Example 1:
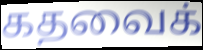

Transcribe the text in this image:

கதவைக்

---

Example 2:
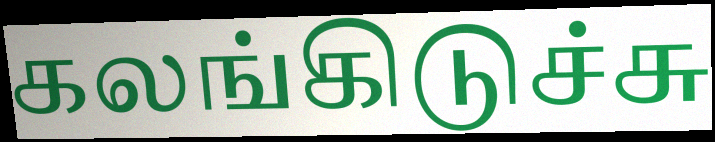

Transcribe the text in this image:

கலங்கிடுச்சு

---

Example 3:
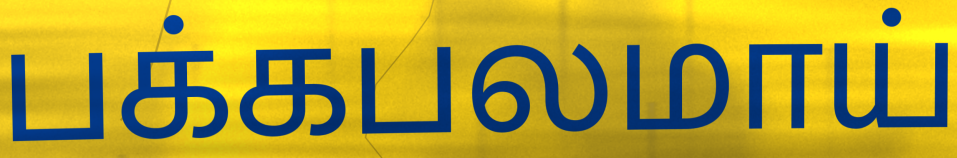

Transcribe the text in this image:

பக்கபலமாய்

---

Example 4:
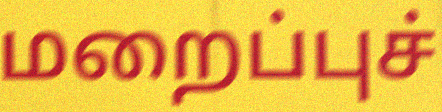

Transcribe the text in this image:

மறைப்புச்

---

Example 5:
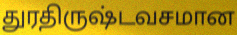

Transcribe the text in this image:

துரதிருஷ்டவசமான